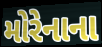
મોરેનાના